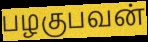
பழகுபவன்